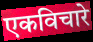
एकविचारे